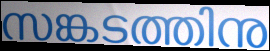
സങ്കടത്തിനു